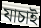
যাচাই